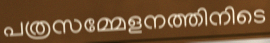
പത്രസമ്മേളനത്തിനിടെ